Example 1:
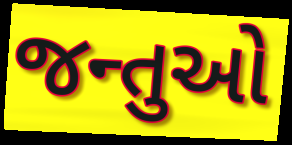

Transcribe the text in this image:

જન્તુઓ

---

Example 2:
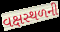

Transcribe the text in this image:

વક્ષસ્થળની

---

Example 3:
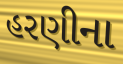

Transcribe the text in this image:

હરણીના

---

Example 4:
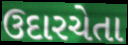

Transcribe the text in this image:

ઉદારચેતા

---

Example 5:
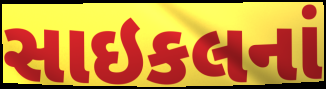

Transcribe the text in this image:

સાઇકલનાં